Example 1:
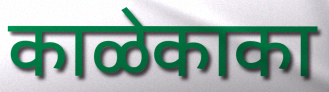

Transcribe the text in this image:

काळेकाका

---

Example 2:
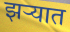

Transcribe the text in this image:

झर्‍यात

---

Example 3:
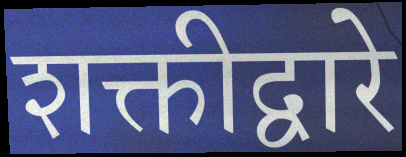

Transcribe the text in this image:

शक्तीद्वारे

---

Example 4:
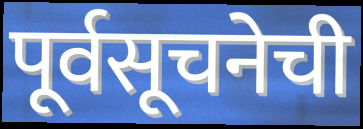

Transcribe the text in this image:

पूर्वसूचनेची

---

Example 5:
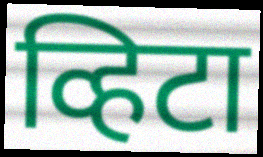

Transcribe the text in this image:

व्हिटा